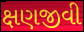
ક્ષણજીવી